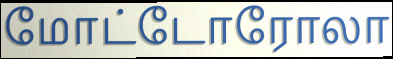
மோட்டோரோலா